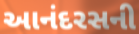
આનંદરસની